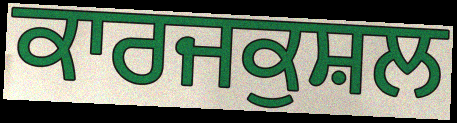
ਕਾਰਜਕੁਸ਼ਲ